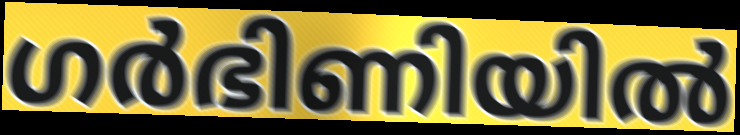
ഗർഭിണിയിൽ